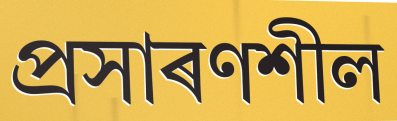
প্ৰসাৰণশীল